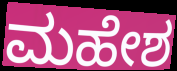
ಮಹೇಶ